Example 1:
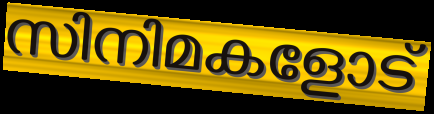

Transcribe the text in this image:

സിനിമകളോട്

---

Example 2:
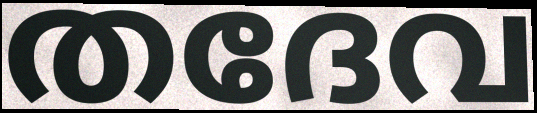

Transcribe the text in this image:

തദേവ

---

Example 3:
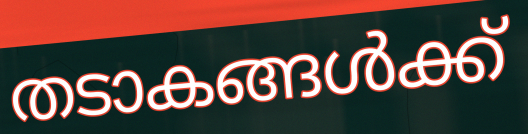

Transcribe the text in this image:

തടാകങ്ങൾക്ക്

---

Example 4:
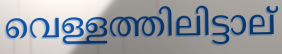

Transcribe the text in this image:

വെള്ളത്തിലിട്ടാല്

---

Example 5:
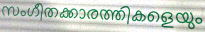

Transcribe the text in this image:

സംഗീതക്കാരത്തികളെയും